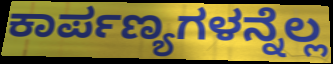
ಕಾರ್ಪಣ್ಯಗಳನ್ನೆಲ್ಲ